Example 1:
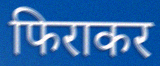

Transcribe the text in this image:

फिराकर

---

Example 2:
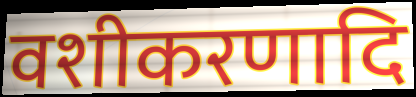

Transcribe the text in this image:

वशीकरणादि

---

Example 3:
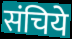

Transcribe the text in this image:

संचिये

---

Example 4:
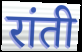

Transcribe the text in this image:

रांती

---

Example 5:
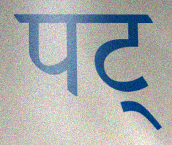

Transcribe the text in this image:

पट्